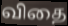
விதை